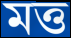
মত্ত